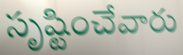
సృష్టించేవారు